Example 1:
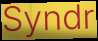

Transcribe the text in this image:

Syndr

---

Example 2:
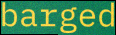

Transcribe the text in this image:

barged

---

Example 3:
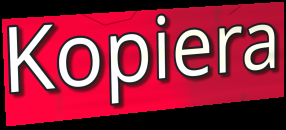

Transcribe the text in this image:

Kopiera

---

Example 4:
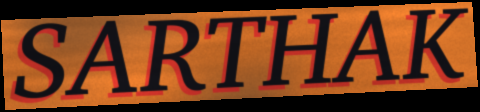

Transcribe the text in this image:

SARTHAK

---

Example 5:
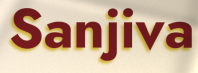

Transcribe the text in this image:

Sanjiva